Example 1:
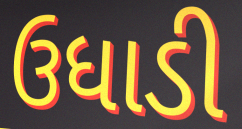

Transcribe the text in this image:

ઉધાડી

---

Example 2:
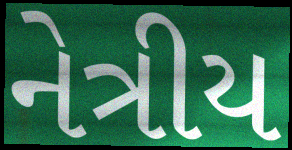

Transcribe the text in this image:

નેત્રીય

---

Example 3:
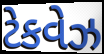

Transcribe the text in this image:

ટેકવેઝ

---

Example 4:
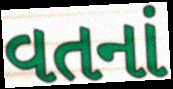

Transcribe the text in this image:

વતનાં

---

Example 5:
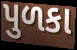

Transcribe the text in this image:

પુળકા